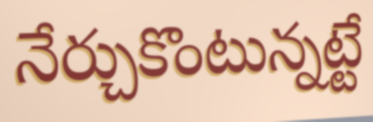
నేర్చుకొంటున్నట్టే